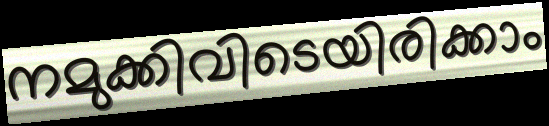
നമുക്കിവിടെയിരിക്കാം